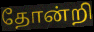
தோன்றி